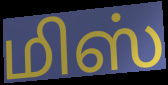
மிஸ்